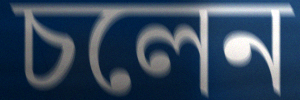
চলেন